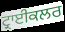
ਟ੍ਰਾਈਕਲਰ